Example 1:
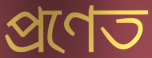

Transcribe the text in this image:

প্ৰণেত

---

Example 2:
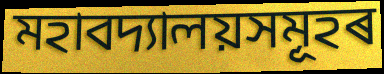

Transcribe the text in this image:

মহাবদ্যালয়সমূহৰ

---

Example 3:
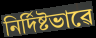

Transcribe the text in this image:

নিৰ্দিষ্টভাৱে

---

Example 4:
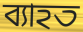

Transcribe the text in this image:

ব্যাহত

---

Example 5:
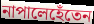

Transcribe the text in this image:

নাপালেহেঁতেন